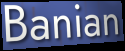
Banian